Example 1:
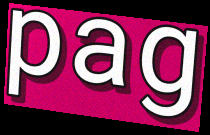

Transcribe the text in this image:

pag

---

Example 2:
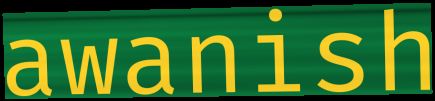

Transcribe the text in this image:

awanish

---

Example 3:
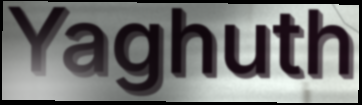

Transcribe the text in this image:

Yaghuth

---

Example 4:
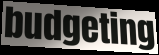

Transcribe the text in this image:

budgeting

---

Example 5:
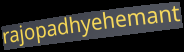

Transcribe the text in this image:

rajopadhyehemant